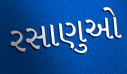
રસાણુઓ